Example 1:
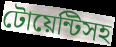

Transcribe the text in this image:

টোয়েন্টিসহ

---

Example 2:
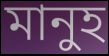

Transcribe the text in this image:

মানুহ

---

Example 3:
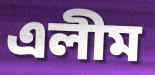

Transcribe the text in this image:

এলীম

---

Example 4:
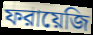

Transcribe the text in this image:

ফরায়েজি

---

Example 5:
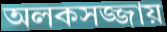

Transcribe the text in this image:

অলকসজ্জায়